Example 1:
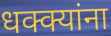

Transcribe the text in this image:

धक्क्यांना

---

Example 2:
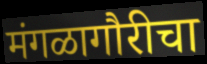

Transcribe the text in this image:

मंगळागौरीचा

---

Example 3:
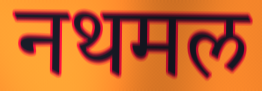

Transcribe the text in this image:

नथमल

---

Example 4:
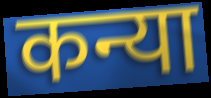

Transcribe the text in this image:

कन्या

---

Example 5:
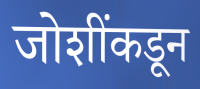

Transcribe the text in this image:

जोशींकडून